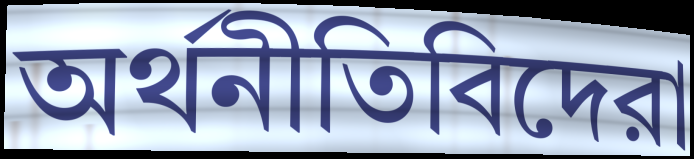
অর্থনীতিবিদেরা